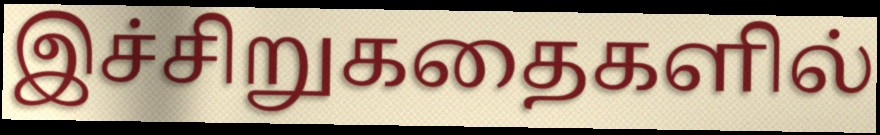
இச்சிறுகதைகளில்